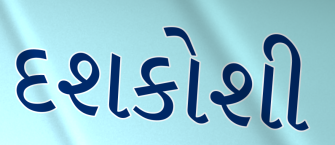
દશકોશી